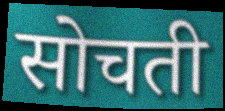
सोचती